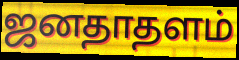
ஜனதாதளம்